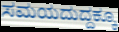
ಸಮಯದುದ್ದಕ್ಕೂ